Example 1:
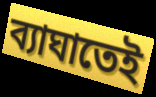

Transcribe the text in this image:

ব্যাঘাতেই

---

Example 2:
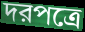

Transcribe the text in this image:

দরপত্রে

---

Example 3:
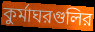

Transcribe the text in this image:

কুর্মাঘরগুলির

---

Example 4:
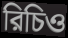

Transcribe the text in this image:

রিচিও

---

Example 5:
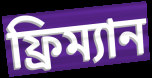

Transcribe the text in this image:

ফ্রিম্যান